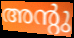
അന്റു